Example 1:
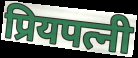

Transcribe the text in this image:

प्रियपत्नी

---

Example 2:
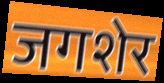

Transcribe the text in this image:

जगशेर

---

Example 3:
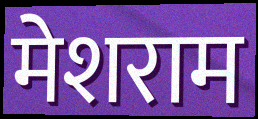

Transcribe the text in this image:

मेशराम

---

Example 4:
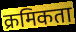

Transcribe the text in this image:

क्रमिकता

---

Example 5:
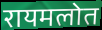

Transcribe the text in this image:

रायमलोत